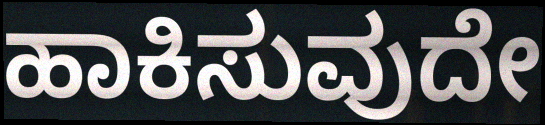
ಹಾಕಿಸುವುದೇ